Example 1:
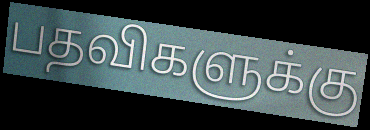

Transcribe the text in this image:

பதவிகளுக்கு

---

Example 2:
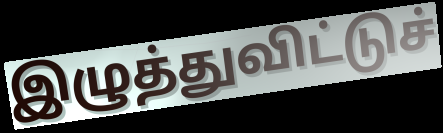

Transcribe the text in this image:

இழுத்துவிட்டுச்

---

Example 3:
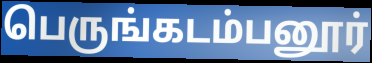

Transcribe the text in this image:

பெருங்கடம்பனூர்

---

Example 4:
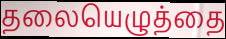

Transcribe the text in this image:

தலையெழுத்தை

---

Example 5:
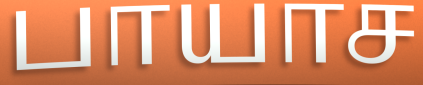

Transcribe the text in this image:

பாயாச